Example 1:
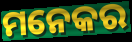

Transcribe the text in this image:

ମନେକର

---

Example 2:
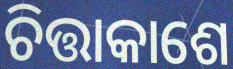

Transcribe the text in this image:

ଚିତ୍ତାକାଶେ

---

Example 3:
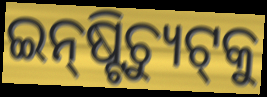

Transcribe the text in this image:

ଇନ୍‌ଷ୍ଟିଚ୍ୟୁଟ୍‌କୁ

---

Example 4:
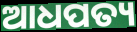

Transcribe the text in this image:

ଆଧପତ୍ୟ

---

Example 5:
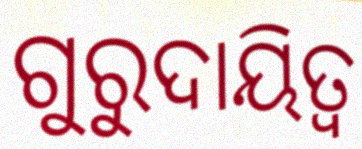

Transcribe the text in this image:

ଗୁରୁଦାୟିତ୍ୱ